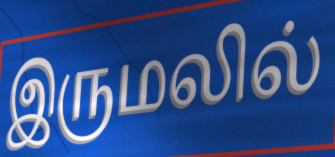
இருமலில்